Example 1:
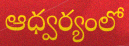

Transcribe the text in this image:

ఆధ్వర్యంలో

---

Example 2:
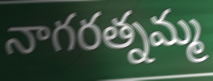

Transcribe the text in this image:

నాగరత్నమ్మ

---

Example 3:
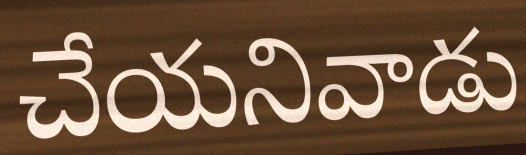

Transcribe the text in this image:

చేయనివాడు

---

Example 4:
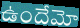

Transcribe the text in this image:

ఉందేమో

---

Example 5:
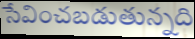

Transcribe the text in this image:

సేవించబడుతున్నది